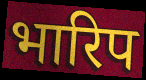
भारिप